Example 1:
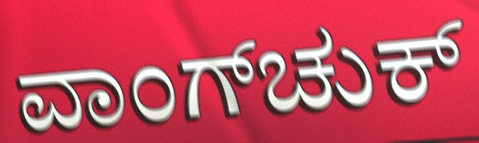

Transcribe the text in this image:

ವಾಂಗ್‌ಚುಕ್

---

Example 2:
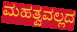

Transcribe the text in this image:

ಮಹತ್ವವಲ್ಲದ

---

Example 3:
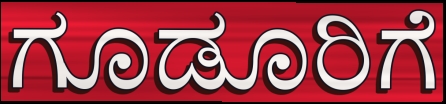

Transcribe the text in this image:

ಗೂಡೂರಿಗೆ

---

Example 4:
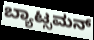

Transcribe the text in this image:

ಬ್ಯಾಟ್ಸಮನ್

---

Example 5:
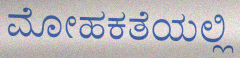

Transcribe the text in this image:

ಮೋಹಕತೆಯಲ್ಲಿ